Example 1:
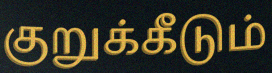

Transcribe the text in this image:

குறுக்கீடும்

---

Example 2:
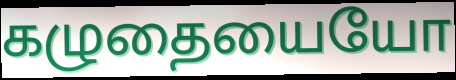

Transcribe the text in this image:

கழுதையையோ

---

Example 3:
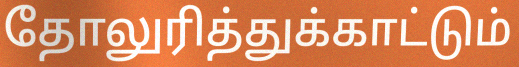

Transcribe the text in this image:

தோலுரித்துக்காட்டும்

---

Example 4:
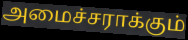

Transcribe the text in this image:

அமைச்சராக்கும்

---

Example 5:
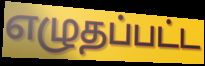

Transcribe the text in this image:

எழுதப்பட்ட